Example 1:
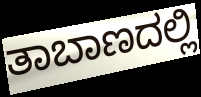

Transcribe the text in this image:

ತಾಬಾಣದಲ್ಲಿ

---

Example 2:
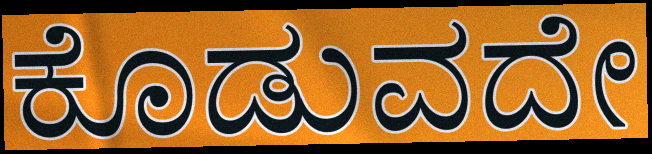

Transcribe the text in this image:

ಕೊಡುವದೇ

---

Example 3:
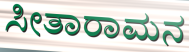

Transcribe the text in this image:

ಸೀತಾರಾಮನ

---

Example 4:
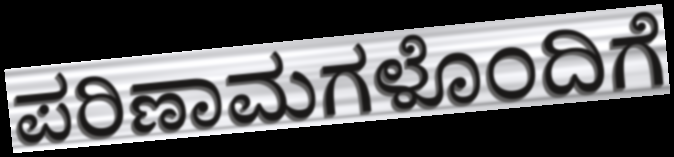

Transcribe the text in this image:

ಪರಿಣಾಮಗಳೊಂದಿಗೆ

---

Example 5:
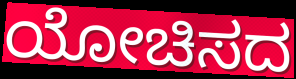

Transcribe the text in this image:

ಯೋಚಿಸದ